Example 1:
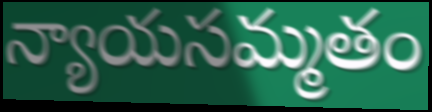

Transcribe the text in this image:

న్యాయసమ్మతం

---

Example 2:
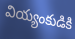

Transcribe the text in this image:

వియ్యంకుడికి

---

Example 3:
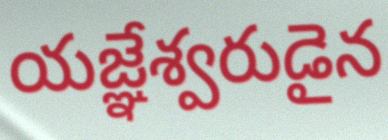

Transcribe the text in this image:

యజ్ఞేశ్వరుడైన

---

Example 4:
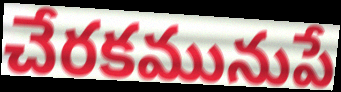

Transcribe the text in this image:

చేరకమునుపే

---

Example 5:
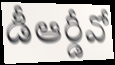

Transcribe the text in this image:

డీఆర్డీవో